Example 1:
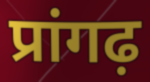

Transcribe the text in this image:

प्रांगढ़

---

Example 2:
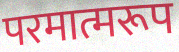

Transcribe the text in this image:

परमात्मरूप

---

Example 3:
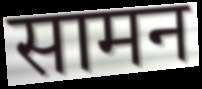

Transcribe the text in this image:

सामन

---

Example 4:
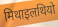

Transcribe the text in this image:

मिथाइलथियो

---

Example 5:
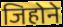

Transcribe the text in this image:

जिहोने